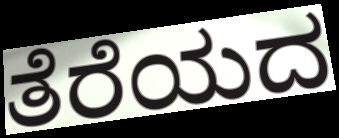
ತೆರೆಯದ